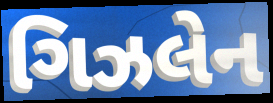
ગિઝલેન